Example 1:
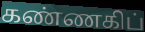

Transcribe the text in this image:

கண்ணகிப்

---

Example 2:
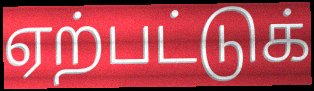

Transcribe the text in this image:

ஏற்பட்டுக்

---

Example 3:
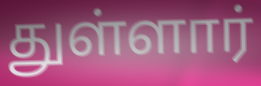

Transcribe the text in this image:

துள்ளார்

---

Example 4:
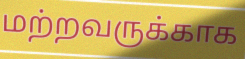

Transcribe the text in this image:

மற்றவருக்காக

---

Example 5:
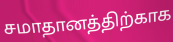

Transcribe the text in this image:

சமாதானத்திற்காக